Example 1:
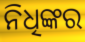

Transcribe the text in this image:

ନିଧିଙ୍କର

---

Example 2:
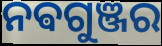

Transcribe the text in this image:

ନଵଗୁଞ୍ଜର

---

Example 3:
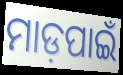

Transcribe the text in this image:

ମାଡ଼ପାଇଁ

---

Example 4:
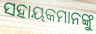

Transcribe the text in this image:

ସହାୟକମାନଙ୍କୁ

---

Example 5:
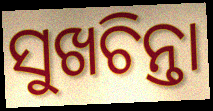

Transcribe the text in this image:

ସୁଖଚିନ୍ତା